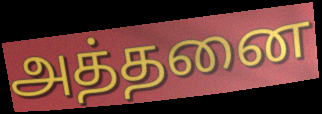
அத்தனை